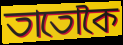
তাতোকৈ